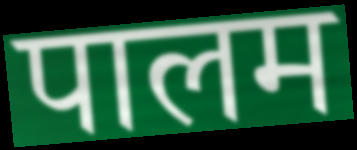
पालम